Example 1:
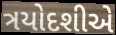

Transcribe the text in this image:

ત્રયોદશીએ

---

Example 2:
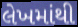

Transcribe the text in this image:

લેખમાંથી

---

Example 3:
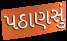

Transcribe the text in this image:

પઠાણસું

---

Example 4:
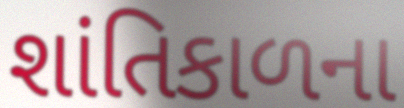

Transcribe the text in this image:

શાંતિકાળના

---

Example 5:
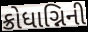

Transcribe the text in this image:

ક્રોધાગ્નિની